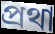
প্রথা